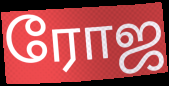
ரோஜ